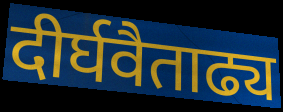
दीर्घवैताढ्य